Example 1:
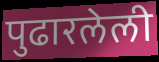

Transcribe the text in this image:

पुढारलेली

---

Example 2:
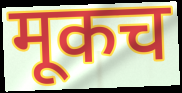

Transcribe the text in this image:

मूकच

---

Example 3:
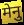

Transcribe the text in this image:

मेनु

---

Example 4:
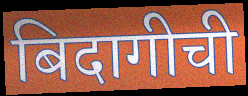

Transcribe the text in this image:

बिदागीची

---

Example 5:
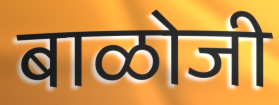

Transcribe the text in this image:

बाळोजी